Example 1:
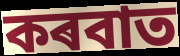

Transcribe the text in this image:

কৰবাত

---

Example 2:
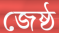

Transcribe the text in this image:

জেষ্ঠ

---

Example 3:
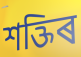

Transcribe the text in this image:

শক্তিৰ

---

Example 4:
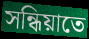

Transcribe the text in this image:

সন্ধিয়াতে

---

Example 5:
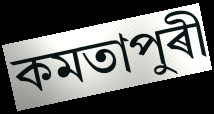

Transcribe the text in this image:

কমতাপুৰী